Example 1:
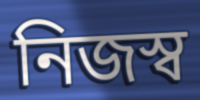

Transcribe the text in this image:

নিজস্ব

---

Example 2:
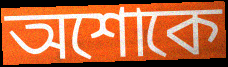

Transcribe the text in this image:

অশোকে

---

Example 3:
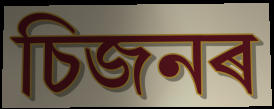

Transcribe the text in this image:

চিজনৰ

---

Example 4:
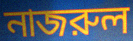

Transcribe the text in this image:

নাজৰুল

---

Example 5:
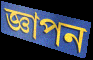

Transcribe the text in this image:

জ্ঞাপন